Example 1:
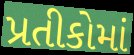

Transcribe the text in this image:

પ્રતીકોમાં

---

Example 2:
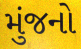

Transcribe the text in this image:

મુંજનો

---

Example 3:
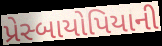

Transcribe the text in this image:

પ્રેસ્બાયોપિયાની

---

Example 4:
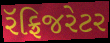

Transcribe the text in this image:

રૅફ્રિજરેટર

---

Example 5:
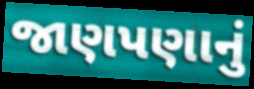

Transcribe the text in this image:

જાણપણાનું